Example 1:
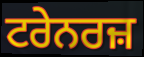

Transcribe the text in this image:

ਟਰੇਨਰਜ਼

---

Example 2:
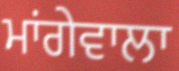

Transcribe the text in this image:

ਮਾਂਗੇਵਾਲਾ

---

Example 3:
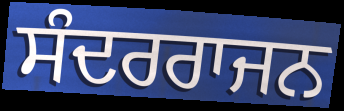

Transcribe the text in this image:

ਸੰਦਰਰਾਜਨ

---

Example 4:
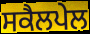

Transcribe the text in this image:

ਸਕੈਲਪੇਲ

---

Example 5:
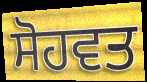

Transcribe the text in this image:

ਸੋਹਵਤ